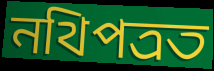
নথিপত্ৰত